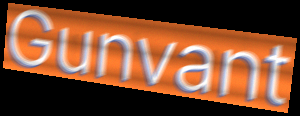
Gunvant